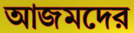
আজমদের